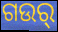
ଗଉର୍